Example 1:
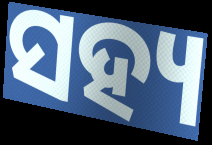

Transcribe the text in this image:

ସହ୍ୟ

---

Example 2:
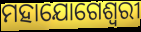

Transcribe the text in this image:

ମହାଯୋଗେଶ୍ୱରୀ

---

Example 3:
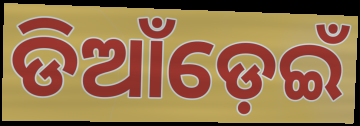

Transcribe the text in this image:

ଡିଆଁଡ଼େଇଁ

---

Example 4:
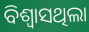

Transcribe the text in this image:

ବିଶ୍ୱାସଥିଲା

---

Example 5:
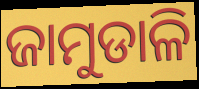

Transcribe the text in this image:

ଜାମୁଡାଳି